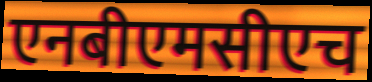
एनबीएमसीएच